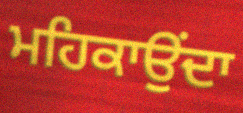
ਮਹਿਕਾਉਂਦਾ